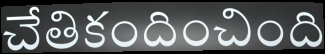
చేతికందించింది